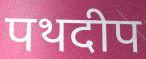
पथदीप